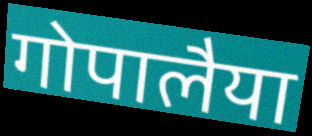
गोपालैया